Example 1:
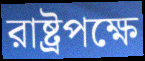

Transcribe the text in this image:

রাষ্ট্রপক্ষে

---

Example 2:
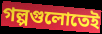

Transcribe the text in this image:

গল্পগুলোতেই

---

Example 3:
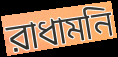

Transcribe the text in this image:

রাধামনি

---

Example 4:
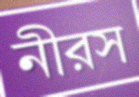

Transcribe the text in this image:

নীরস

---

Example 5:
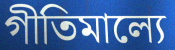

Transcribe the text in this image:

গীতিমাল্যে